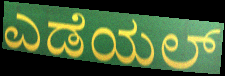
ಎಡೆಯಲ್